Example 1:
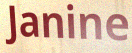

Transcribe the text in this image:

Janine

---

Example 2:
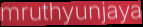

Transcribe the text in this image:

mruthyunjaya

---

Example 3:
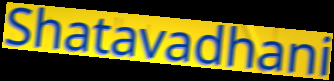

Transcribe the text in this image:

Shatavadhani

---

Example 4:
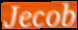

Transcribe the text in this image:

Jecob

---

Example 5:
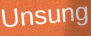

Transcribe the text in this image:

Unsung